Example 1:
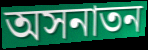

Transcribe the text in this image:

অসনাতন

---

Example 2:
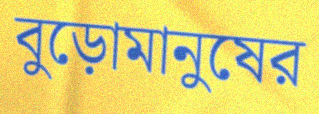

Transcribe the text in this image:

বুড়োমানুষের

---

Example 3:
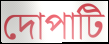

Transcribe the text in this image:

দোপাটি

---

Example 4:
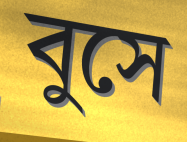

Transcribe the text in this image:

বুসে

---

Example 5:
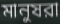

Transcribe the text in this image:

মানুষরা